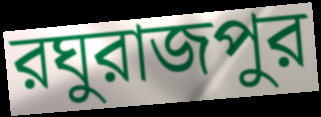
রঘুরাজপুর